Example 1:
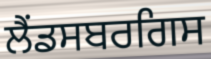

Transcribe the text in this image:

ਲੈਂਡਸਬਰਗਿਸ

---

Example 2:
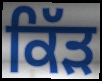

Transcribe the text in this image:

ਕਿੱੜ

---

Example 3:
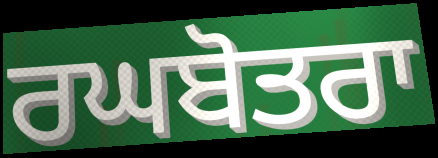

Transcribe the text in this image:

ਰਘਬੋਤਰਾ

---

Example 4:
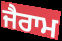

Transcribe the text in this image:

ਜੈਰਾਮ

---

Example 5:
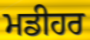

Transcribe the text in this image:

ਮਡੀਹਰ